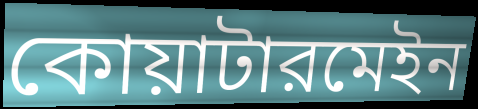
কোয়াটারমেইন